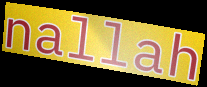
nallah